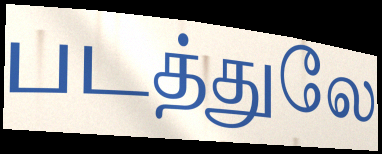
படத்துலே